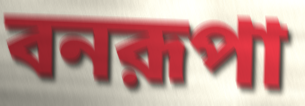
বনরূপা